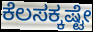
ಕೆಲಸಕ್ಕಷ್ಟೇ